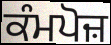
ਕੰਮਪੋਜ਼